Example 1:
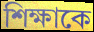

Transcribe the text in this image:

শিক্ষাকে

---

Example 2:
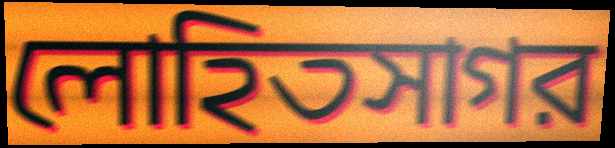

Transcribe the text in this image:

লোহিতসাগর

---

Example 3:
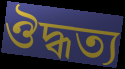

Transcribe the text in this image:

ঔদ্ধত্য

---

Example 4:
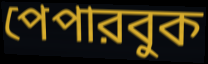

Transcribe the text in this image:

পেপারবুক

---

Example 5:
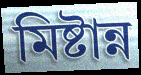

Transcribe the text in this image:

মিষ্টান্ন